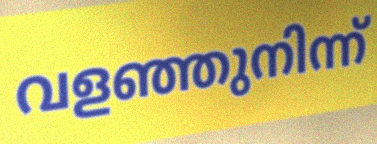
വളഞ്ഞുനിന്ന്